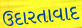
ઉદારતાવાદ